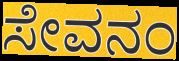
ಸೇವನಂ